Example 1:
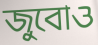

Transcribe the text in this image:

জুবোও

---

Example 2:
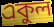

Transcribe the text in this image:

একুল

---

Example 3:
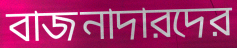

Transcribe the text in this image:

বাজনাদারদের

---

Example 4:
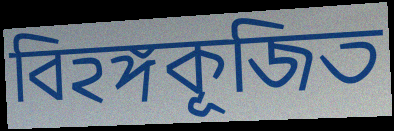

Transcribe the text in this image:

বিহঙ্গকূজিত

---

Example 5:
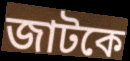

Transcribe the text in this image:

জাটকে